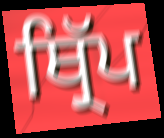
ਥ੍ਰਿੱਪ